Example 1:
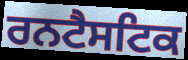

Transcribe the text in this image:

ਰਨਟੈਸਟਿਕ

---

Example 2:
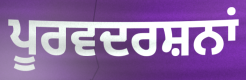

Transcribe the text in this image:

ਪੂਰਵਦਰਸ਼ਨਾਂ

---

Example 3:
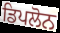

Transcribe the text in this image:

ਡਿਪਲੋਨ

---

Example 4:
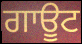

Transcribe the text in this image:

ਗਾਊਟ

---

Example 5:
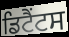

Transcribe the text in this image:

ਡਿਟੈਂਟਸ